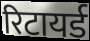
रिटायर्ड